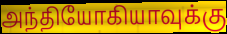
அந்தியோகியாவுக்கு